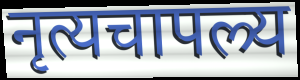
नृत्यचापल्य